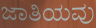
ಜಾತಿಯವು